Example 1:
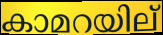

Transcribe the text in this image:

കാമറയില്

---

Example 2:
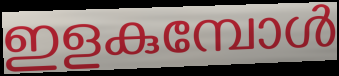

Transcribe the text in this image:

ഇളകുമ്പോൾ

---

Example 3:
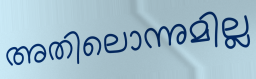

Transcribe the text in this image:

അതിലൊന്നുമില്ല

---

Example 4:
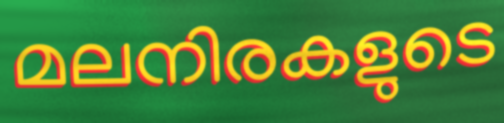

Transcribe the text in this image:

മലനിരകളുടെ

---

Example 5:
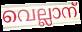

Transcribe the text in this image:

വെല്ലാന്